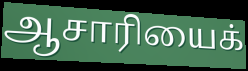
ஆசாரியைக்